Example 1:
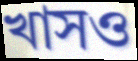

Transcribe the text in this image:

খাসও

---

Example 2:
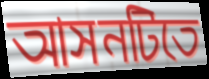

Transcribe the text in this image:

আসনটিতে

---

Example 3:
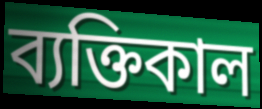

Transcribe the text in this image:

ব্যক্তিকাল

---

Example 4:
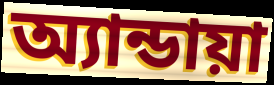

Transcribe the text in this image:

অ্যান্ডায়া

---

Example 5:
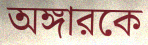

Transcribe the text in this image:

অঙ্গারকে